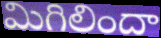
మిగిలిందా